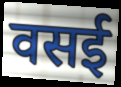
वसई